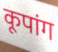
कूपांग